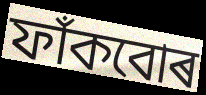
ফাঁকবোৰ